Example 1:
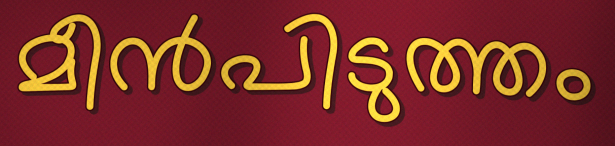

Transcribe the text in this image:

മീൻപിടുത്തം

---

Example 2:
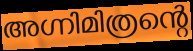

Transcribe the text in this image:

അഗ്നിമിത്രന്റെ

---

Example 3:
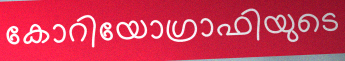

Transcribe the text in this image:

കോറിയോഗ്രാഫിയുടെ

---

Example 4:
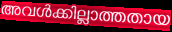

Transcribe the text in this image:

അവൾക്കില്ലാത്തതായ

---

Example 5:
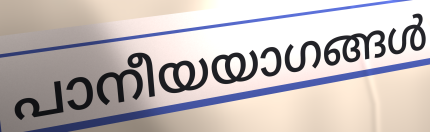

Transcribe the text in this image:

പാനീയയാഗങ്ങൾ